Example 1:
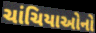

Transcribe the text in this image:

ચાંચિયાઓનો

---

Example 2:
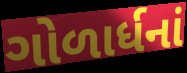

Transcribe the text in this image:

ગોળાર્ધનાં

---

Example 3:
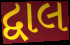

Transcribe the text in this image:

દ્વાલ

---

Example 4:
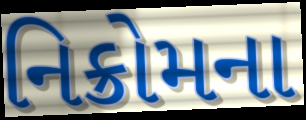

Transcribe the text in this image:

નિક્રોમના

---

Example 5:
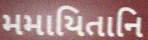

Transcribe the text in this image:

મમાયિતાનિ